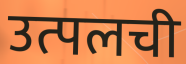
उत्पलची